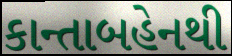
કાન્તાબહેનથી